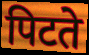
पिटते